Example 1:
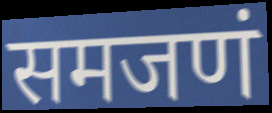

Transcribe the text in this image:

समजणं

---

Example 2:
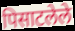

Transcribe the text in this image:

पिसाटलेले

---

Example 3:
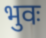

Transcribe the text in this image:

भुवः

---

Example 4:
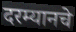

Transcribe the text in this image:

दरम्यानचे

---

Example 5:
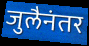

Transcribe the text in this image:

जुलैनंतर